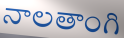
నాలతాంగి